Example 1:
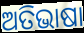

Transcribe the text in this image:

ଅତିଭାଷା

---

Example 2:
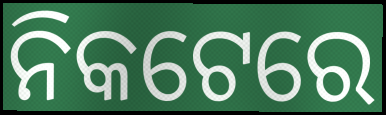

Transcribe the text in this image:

ନିକଟେରେ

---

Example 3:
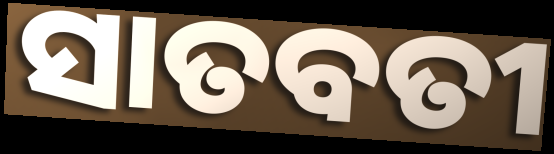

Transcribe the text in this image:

ସାତବତୀ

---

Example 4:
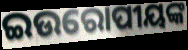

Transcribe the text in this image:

ଇଉରୋପୀୟଙ୍କ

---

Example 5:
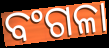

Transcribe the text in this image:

ବଂଗଳା